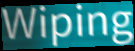
Wiping